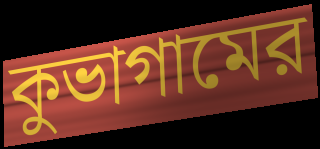
কুভাগামের